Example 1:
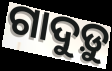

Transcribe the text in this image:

ଗାଦୁଡ଼ୁ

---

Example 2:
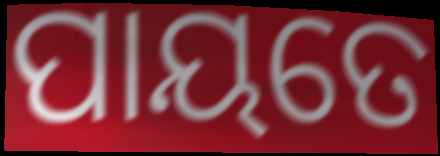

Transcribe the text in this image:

ପାୟତେ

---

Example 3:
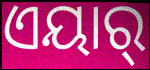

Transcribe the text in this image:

ଏୟାର୍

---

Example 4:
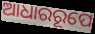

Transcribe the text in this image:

ଆଧାରରୂପେ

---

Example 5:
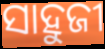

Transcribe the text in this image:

ସାହୁଜୀ